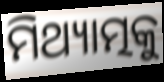
ମିଥ୍ୟାତ୍ମକୁ